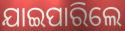
ଯାଇପାରିଲେ